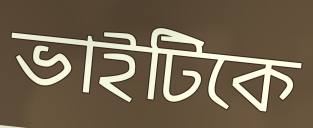
ভাইটিকে